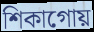
শিকাগোয়